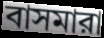
বাসমারা